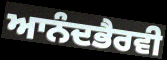
ਆਨੰਦਭੈਰਵੀ